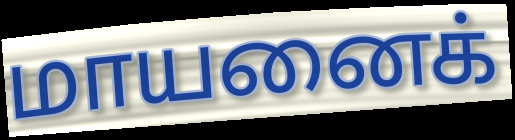
மாயனைக்